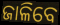
ଜାଳିବେ